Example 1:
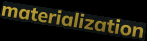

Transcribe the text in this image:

materialization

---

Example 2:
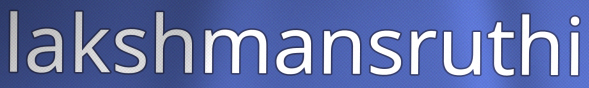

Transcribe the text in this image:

lakshmansruthi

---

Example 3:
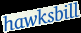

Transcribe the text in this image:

hawksbill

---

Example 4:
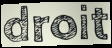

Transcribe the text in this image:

droit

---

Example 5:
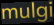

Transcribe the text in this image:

mulgi